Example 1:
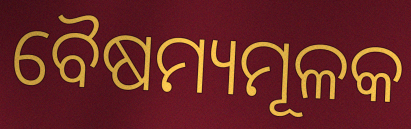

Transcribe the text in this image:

ବୈଷମ୍ୟମୂଳକ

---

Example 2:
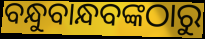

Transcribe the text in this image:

ବନ୍ଧୁବାନ୍ଧବଙ୍କଠାରୁ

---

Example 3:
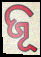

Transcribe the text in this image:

ଜୂ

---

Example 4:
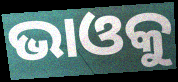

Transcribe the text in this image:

ଭାଓକୁ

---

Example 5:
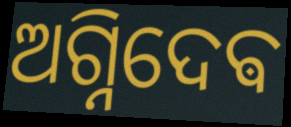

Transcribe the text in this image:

ଅଗ୍ନିଦେଵ